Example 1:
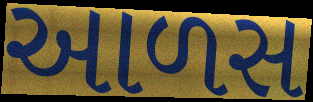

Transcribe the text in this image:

આળસ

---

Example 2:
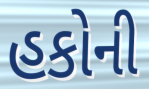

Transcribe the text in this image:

હકોની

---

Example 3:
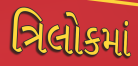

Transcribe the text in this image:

ત્રિલોકમાં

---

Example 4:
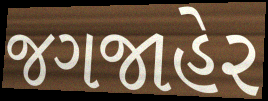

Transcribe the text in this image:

જગજાહેર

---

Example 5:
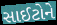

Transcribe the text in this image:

સાઈટોને